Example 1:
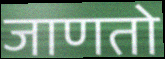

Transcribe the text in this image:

जाणतो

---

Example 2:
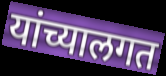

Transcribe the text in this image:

यांच्यालगत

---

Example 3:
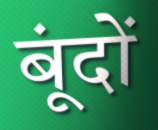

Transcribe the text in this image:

बूंदों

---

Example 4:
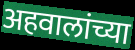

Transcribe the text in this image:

अहवालांच्या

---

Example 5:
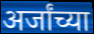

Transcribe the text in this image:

अर्जांच्या